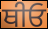
ਥੀਓ